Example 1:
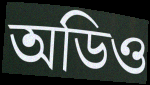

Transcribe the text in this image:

অডিও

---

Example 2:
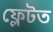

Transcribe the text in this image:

ফ্লেটত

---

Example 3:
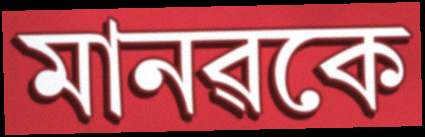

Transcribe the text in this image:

মানৱকে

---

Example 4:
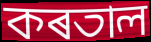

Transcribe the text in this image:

কৰতাল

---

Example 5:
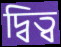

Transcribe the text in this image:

দ্বিত্ব